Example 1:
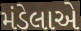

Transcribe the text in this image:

મંડેલાએ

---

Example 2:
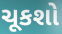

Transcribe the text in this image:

ચૂકશો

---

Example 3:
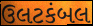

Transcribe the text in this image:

ઉલટકંબલ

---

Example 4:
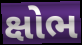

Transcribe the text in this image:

ક્ષોભ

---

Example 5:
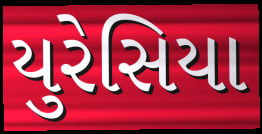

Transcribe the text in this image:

યુરેસિયા